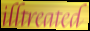
illtreated